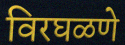
विरघळणे